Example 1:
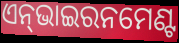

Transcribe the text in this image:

ଏନ୍‌ଭାଇରନମେଣ୍ଟ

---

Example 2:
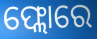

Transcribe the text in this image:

ଫ୍ଲୋରେ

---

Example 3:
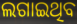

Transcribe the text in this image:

ଲଗାଇଥିବ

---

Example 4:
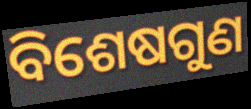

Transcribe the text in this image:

ବିଶେଷଗୁଣ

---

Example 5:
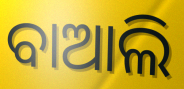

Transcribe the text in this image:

ବାଆଲି